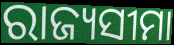
ରାଜ୍ୟସୀମା